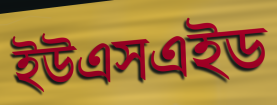
ইউএসএইড